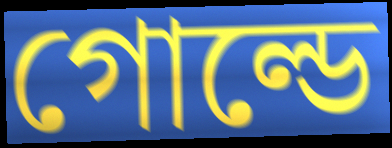
গোল্ডে